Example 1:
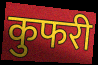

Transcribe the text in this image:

कुफरी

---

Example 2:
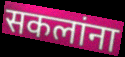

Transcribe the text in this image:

सकलांना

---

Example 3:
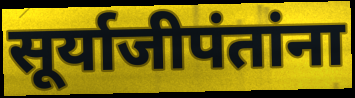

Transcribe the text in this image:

सूर्याजीपंतांना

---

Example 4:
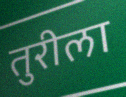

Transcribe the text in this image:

तुरीला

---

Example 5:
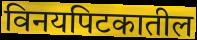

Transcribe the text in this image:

विनयपिटकातील